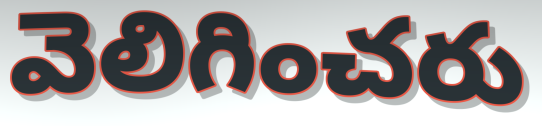
వెలిగించరు